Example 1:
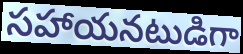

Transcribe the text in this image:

సహాయనటుడిగా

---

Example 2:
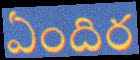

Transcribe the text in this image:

ఏందిర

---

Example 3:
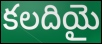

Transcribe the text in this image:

కలదియై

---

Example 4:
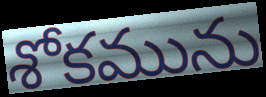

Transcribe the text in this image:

శోకమును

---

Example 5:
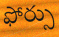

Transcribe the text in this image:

ఫోర్సు